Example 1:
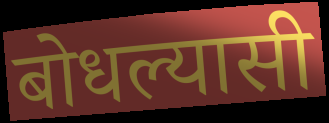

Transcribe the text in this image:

बोधल्यासी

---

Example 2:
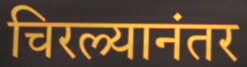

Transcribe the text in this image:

चिरल्यानंतर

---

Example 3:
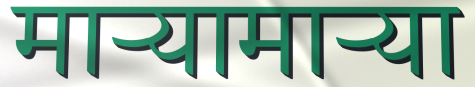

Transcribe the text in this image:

माऱ्यामाऱ्या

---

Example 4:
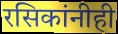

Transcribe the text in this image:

रसिकांनीही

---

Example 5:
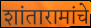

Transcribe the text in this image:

शांतारामांचे